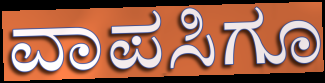
ವಾಪಸಿಗೂ